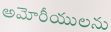
అమోరీయులను